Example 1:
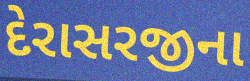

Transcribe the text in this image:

દેરાસરજીના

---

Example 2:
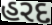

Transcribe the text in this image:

હરદ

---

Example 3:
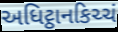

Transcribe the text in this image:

અધિટ્ઠાનકિચ્ચં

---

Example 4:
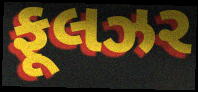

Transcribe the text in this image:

ફૂલઝર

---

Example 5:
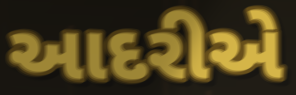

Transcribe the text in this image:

આદરીએ